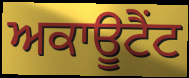
ਅਕਾਊਟੈਂਟ